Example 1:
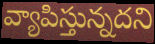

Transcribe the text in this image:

వ్యాపిస్తున్నదని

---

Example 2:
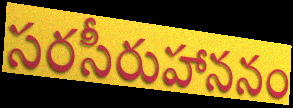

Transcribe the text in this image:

సరసీరుహాననం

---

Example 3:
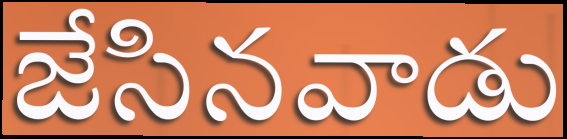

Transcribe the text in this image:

జేసినవాడు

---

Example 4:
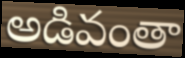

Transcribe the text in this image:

అడివంతా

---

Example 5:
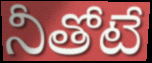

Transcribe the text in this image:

నీతోటే